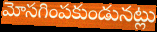
మోసగింపకుండునట్లు